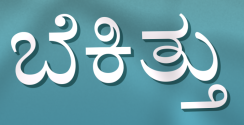
ಬೆಕಿತ್ತು